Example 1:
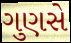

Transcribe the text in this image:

ગુણસે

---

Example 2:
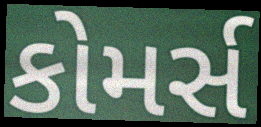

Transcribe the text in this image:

કોમર્સ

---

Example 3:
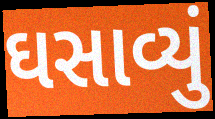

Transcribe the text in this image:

ઘસાવ્યું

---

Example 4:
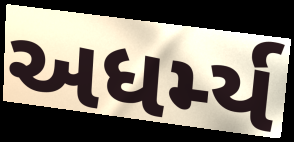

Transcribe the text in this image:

અધર્મ્ય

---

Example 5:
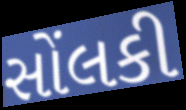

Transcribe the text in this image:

સોંલકી